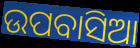
ଉପବାସିଆ